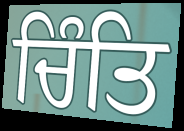
ਚਿੰਤਿ